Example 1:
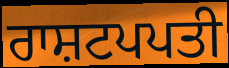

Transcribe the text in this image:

ਰਾਸ਼ਟਪਪਤੀ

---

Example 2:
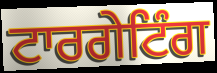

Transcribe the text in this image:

ਟਾਰਗੇਟਿੰਗ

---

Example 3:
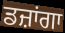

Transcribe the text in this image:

ਡਜ਼ਾਂਗਾ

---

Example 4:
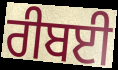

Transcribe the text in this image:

ਰੀਬਈ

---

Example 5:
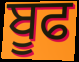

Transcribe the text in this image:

ਬੂਫ